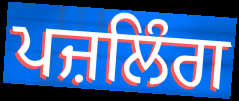
ਪਜ਼ਲਿੰਗ